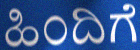
ಹಿಂದಿಗೆ